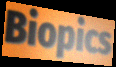
Biopics